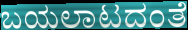
ಬಯಲಾಟದಂತೆ